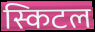
स्किटल